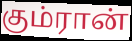
கும்ரான்